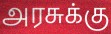
அரசுக்கு